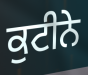
ਕੁਟੀਨੇ